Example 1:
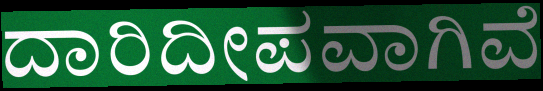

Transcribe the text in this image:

ದಾರಿದೀಪವಾಗಿವೆ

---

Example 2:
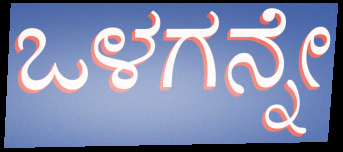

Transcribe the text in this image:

ಒಳಗನ್ನೇ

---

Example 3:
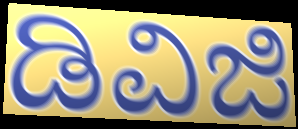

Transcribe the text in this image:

ಡಿವಿಜಿ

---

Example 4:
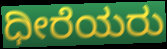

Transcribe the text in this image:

ಧೀರೆಯರು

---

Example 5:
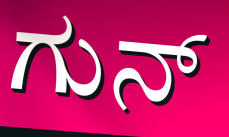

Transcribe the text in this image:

ಗುನ್